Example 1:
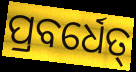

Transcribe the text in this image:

ପ୍ରବର୍ଧେତ୍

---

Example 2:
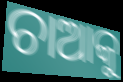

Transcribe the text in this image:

ଚାଆକୁ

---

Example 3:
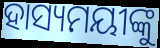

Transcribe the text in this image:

ହାସ୍ୟମୟୀଙ୍କୁ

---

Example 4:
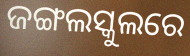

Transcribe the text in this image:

ଜଙ୍ଗଲସ୍କୁଲରେ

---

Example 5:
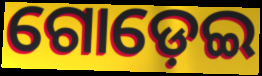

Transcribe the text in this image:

ଗୋଡ଼େଇ